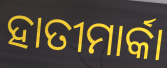
ହାତୀମାର୍କା